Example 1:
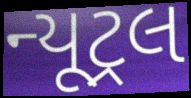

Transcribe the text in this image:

ન્યૂટ્રલ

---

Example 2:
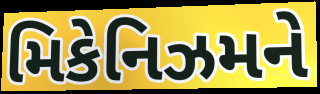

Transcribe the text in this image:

મિકેનિઝમને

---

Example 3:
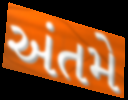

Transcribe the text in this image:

અંતમે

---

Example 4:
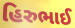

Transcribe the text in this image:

હિરુભાઈ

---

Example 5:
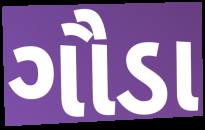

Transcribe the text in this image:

ગૌડા